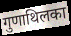
गुणाथिलका